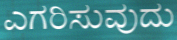
ಎಗರಿಸುವುದು